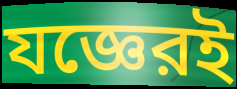
যজ্ঞেরই